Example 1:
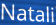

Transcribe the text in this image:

Natali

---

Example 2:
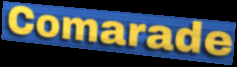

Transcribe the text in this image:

Comarade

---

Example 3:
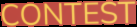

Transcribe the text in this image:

CONTEST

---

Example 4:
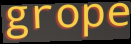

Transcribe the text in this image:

grope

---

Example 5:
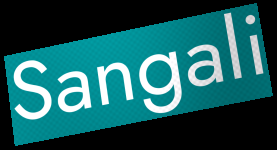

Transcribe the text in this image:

Sangali